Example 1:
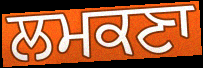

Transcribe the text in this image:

ਲਮਕਣਾ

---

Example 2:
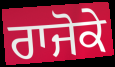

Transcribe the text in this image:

ਰਾਜੋਕੇ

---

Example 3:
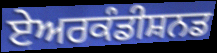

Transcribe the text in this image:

ਏਅਰਕੰਡੀਸ਼ਨਡ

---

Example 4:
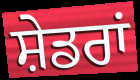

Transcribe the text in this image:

ਸ਼ੇਡਰਾਂ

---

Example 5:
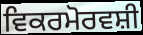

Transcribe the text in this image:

ਵਿਕਰਮੋਰਵਸ਼ੀ